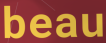
beau